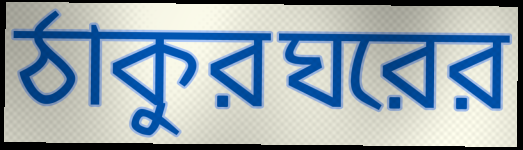
ঠাকুরঘরের